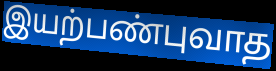
இயற்பண்புவாத